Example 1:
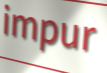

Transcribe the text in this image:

impur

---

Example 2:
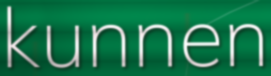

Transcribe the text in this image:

kunnen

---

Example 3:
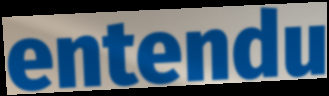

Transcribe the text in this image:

entendu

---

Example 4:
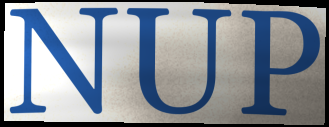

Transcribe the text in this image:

NUP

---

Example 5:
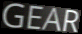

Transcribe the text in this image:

GEAR